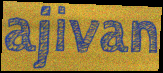
ajivan